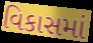
વિકાસમાં